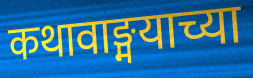
कथावाङ्मयाच्या